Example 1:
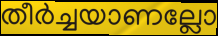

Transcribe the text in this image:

തീർച്ചയാണല്ലോ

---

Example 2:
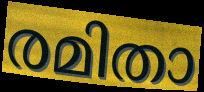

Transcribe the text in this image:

രമിതാ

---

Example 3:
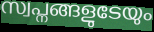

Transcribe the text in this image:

സ്വപ്നങ്ങളുടേയും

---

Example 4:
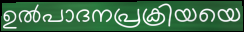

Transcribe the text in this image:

ഉൽപാദനപ്രക്രിയയെ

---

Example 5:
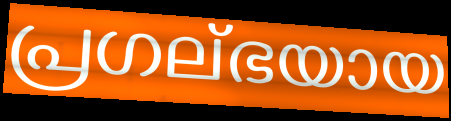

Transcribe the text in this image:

പ്രഗല്ഭയായ